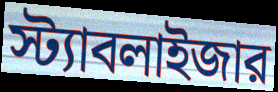
স্ট্যাবলাইজার